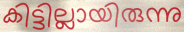
കിട്ടില്ലായിരുന്നു